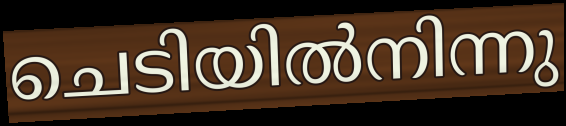
ചെടിയിൽനിന്നു